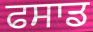
ਫਸਾਡ